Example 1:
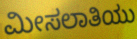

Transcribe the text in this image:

ಮೀಸಲಾತಿಯು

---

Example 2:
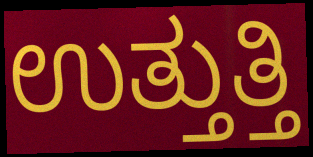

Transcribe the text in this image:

ಉತ್ತುತ್ತಿ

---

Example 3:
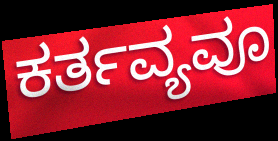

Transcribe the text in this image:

ಕರ್ತವ್ಯವೂ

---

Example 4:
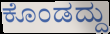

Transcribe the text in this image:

ಕೊಂಡದ್ದು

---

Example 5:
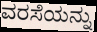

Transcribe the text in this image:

ವರಸೆಯನ್ನು